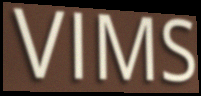
VIMS